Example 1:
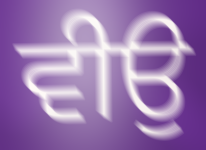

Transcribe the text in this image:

ਵੀਉ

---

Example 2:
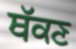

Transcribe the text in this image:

ਥੱਕਣ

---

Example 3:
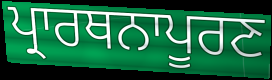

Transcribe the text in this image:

ਪ੍ਰਾਰਥਨਾਪੂਰਣ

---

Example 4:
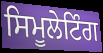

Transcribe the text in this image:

ਸਿਮੂਲੇਟਿੰਗ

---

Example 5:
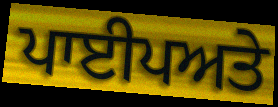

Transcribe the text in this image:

ਪਾਈਪਅਤੇ